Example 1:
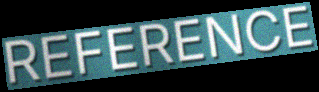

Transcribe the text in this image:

REFERENCE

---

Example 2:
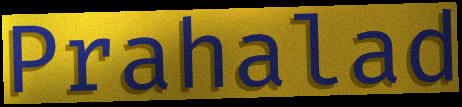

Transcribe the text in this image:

Prahalad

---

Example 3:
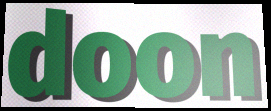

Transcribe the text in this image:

doon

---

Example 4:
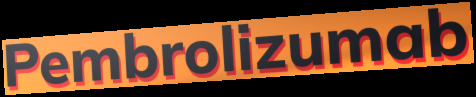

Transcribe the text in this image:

Pembrolizumab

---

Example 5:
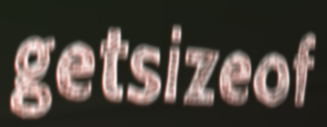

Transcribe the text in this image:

getsizeof